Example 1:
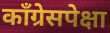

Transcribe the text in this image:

कॉंग्रेसपेक्षा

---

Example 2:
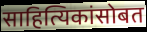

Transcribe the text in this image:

साहित्यिकांसोबत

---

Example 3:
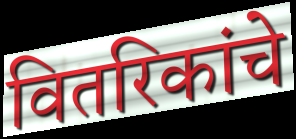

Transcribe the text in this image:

वितरिकांचे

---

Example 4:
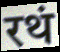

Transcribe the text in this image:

रथं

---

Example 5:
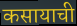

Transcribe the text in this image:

कसायाची